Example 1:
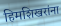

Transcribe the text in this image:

हिमशिखरांना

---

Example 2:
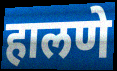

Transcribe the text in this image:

हालणे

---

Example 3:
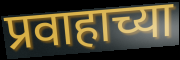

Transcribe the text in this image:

प्रवाहाच्या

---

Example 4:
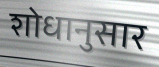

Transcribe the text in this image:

शोधानुसार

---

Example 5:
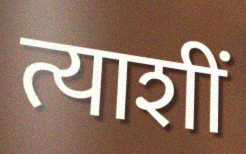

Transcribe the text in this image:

त्याशीं